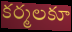
కర్మలకూ